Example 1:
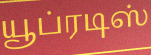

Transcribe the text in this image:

யூப்ரடிஸ்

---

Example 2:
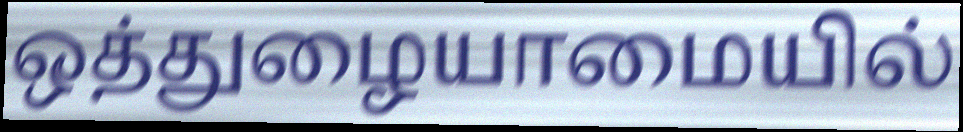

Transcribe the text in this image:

ஒத்துழையாமையில்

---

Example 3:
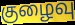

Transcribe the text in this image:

குழைவு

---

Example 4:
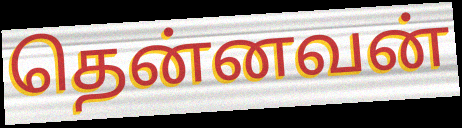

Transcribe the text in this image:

தென்னவன்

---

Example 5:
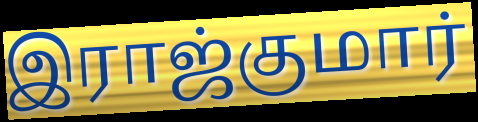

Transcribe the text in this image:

இராஜ்குமார்